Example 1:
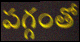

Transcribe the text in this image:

పగ్గంతో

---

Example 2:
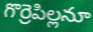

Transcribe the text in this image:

గొర్రెపిల్లనూ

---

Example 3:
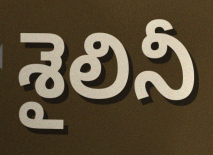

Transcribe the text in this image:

శైలినీ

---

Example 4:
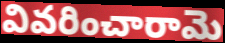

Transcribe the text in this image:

వివరించారామె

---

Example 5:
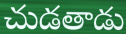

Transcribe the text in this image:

చుడతాడు